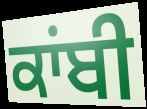
ਕਾਂਬੀ